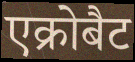
एक्रोबैट